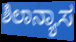
ಶಿಲಾನ್ಯಾಸ